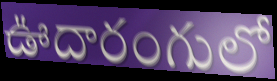
ఊదారంగులో